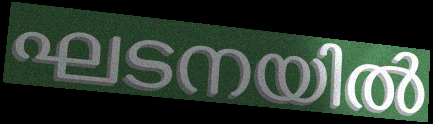
ഘടനയിൽ